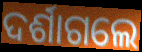
ଦର୍ଶାଗଲେ